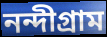
নন্দীগ্রাম